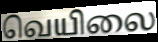
வெயிலை